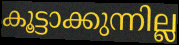
കൂട്ടാക്കുന്നില്ല